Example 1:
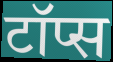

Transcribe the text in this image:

टॉप्स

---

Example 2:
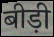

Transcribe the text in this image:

बीड़ी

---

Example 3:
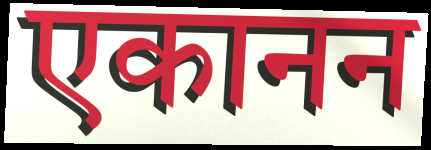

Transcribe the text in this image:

एकानन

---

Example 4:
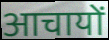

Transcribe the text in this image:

आचायों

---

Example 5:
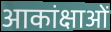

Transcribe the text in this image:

आकांक्षाओं